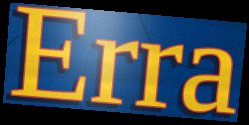
Erra